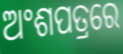
ଅଂଶପତ୍ରରେ